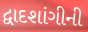
દ્વાદશાંગીની